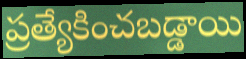
ప్రత్యేకించబడ్డాయి